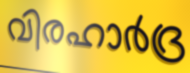
വിരഹാർദ്ര